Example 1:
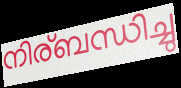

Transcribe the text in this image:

നിര്ബന്ധിച്ചു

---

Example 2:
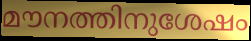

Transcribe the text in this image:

മൗനത്തിനുശേഷം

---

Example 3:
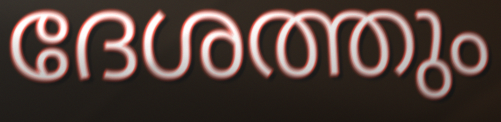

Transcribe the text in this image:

ദേശത്തും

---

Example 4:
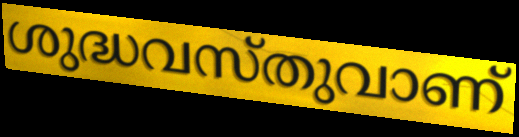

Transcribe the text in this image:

ശുദ്ധവസ്തുവാണ്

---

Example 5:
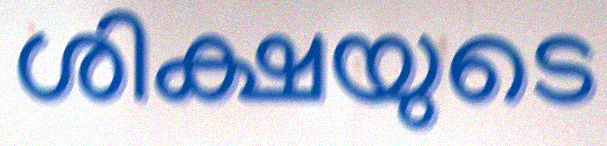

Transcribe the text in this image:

ശിക്ഷയുടെ